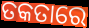
ତକତାରେ